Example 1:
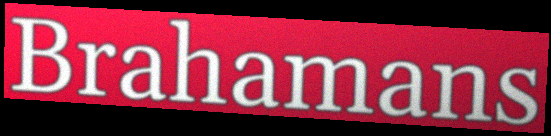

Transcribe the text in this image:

Brahamans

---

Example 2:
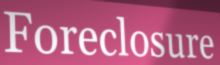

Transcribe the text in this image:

Foreclosure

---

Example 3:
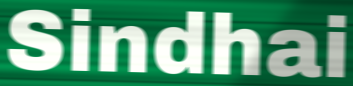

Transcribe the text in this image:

Sindhai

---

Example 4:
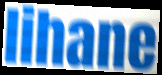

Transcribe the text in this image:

lihane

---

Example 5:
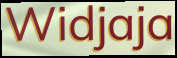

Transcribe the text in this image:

Widjaja